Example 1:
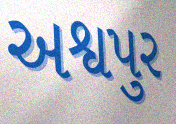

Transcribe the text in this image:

અશ્વપુર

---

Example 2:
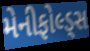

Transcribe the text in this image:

મેનીફોલ્ડ્સ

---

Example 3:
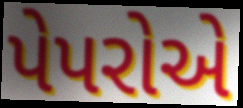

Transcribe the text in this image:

પેપરોએ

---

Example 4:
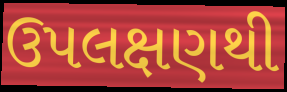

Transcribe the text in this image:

ઉપલક્ષણથી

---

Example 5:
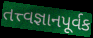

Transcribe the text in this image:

તત્ત્વજ્ઞાનપૂર્વક